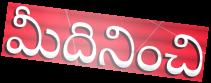
మీదినించి